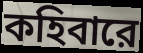
কহিবারে